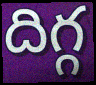
దిగ్గ